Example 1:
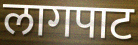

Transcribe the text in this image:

लागपाट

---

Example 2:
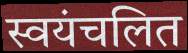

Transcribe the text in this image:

स्वयंचलित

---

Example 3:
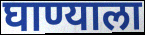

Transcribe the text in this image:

घाण्याला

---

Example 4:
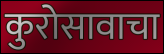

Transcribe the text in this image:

कुरोसावाचा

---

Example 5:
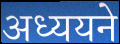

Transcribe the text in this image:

अध्ययने